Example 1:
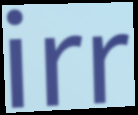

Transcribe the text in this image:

irr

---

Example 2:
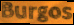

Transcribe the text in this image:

Burgos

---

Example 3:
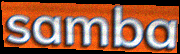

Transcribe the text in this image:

samba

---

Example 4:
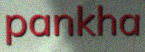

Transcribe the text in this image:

pankha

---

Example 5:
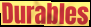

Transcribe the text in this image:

Durables